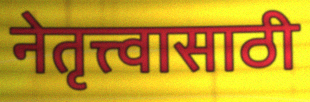
नेतृत्त्वासाठी